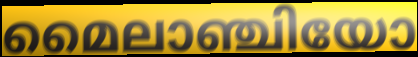
മൈലാഞ്ചിയോ